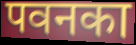
पवनका